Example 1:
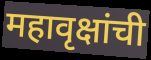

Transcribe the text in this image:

महावृक्षांची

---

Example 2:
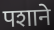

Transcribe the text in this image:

पशाने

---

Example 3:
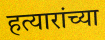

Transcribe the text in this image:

हत्यारांच्या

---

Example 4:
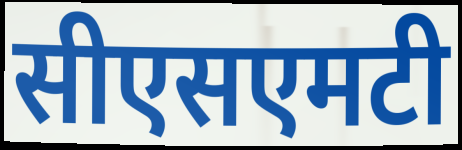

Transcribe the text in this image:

सीएसएमटी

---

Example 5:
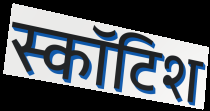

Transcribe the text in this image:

स्कॉटिश